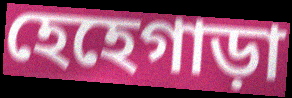
হেহেগাড়া